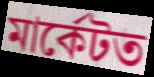
মাৰ্কেটত